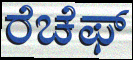
ರೆಚೆಫ್